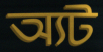
অ্যট